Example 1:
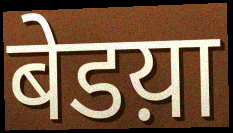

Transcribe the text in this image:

बेडय़ा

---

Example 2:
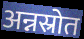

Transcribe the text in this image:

अन्नस्रोत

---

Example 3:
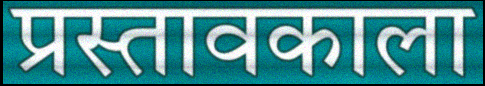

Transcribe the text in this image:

प्रस्तावकाला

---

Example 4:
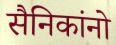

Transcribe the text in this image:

सैनिकांनो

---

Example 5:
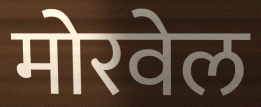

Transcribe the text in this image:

मोरवेल